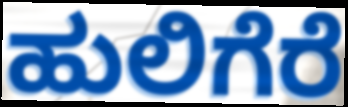
ಹುಲಿಗೆರೆ